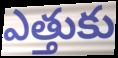
ఎత్తుకు